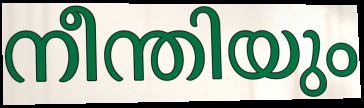
നീന്തിയും